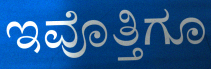
ಇವೊತ್ತಿಗೂ